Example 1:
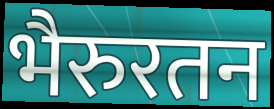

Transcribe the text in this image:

भैरुरतन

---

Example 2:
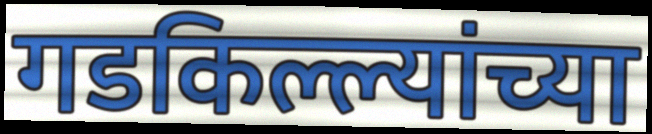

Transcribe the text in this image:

गडकिल्ल्यांच्या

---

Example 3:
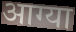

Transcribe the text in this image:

आग्या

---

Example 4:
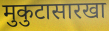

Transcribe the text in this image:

मुकुटासारखा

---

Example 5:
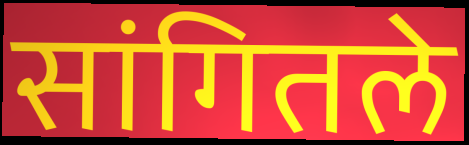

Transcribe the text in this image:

सांगितले